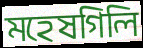
মহেষগিলি